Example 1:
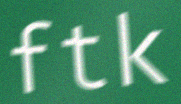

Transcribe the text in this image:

ftk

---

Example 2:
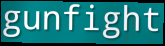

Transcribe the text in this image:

gunfight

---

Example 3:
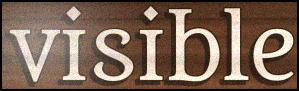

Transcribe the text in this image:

visible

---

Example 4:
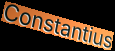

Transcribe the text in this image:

Constantius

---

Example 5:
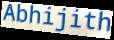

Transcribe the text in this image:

Abhijith